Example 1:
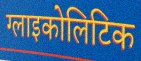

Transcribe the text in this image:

ग्लाइकोलिटिक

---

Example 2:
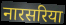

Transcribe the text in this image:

नारसरिया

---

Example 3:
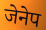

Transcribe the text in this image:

जेनेप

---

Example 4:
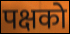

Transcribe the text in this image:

पक्षको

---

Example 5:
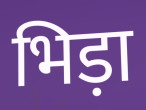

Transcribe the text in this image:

भिड़ा